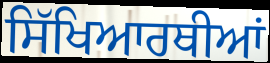
ਸਿੱਖਿਆਰਥੀਆਂ